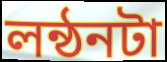
লন্ঠনটা